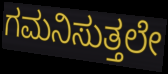
ಗಮನಿಸುತ್ತಲೇ